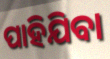
ପାହିଯିବା